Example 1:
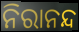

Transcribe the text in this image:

ନିରାନନ୍ଦ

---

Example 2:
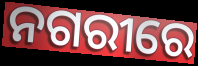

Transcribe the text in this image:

ନଗରୀରେ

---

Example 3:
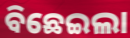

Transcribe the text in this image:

ବିଛେଇଲା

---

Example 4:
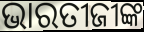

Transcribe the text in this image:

ଭାରତୀଜୀଙ୍କ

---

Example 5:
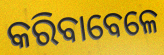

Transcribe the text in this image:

କରିବାବେଳେ